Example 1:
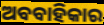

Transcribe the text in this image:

ଅବବାହିକାର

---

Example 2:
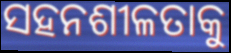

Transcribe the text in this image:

ସହନଶୀଳତାକୁ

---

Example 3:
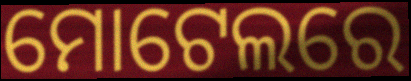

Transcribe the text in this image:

ମୋଟେଲରେ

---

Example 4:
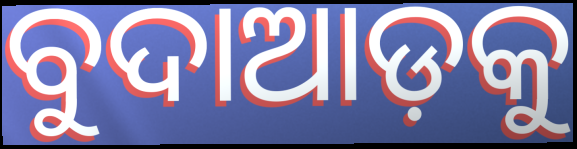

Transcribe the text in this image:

ବୁଦାଆଡ଼କୁ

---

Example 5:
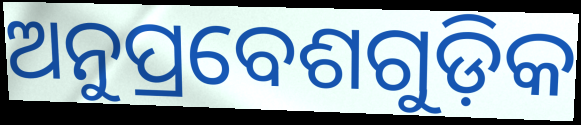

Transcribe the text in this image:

ଅନୁପ୍ରବେଶଗୁଡ଼ିକ